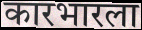
कारभारला